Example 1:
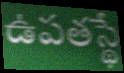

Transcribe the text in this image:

ఉపతస్థే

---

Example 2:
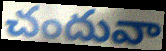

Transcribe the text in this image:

చందువా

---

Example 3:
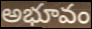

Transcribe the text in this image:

అభూవం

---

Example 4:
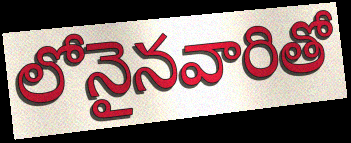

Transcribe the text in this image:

లోనైనవారితో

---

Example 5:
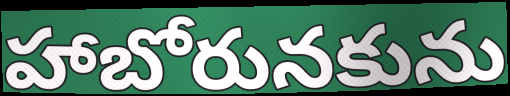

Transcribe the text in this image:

హాబోరునకును